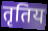
तृतिय